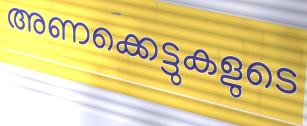
അണക്കെട്ടുകളുടെ